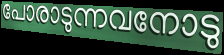
പോരാടുന്നവനോടു